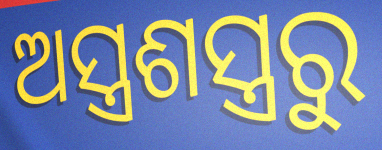
ଅସ୍ତ୍ରଶସ୍ତ୍ରରୁ